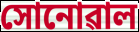
সোনোৱাল